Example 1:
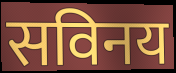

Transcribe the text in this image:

सविनय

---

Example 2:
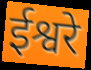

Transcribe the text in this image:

ईश्वरे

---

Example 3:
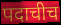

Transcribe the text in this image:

पदाचीच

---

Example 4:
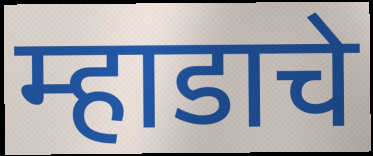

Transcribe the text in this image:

म्हाडाचे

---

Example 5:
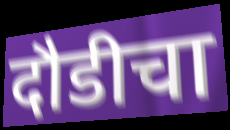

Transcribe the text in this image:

दौडीचा